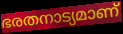
ഭരതനാട്യമാണ്